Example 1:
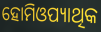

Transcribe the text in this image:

ହୋମିଓପ୍ୟାଥିକ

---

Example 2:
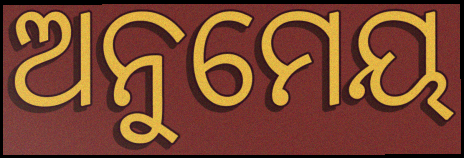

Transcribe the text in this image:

ଅନୁମେୟ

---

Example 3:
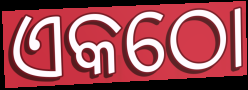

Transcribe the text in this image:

ଏକଠୋ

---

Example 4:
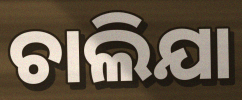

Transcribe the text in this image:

ଚାଲିଯା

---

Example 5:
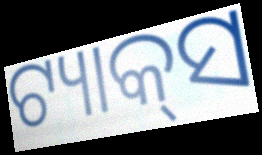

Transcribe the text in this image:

ଟ୍ୟାକ୍‌ସ